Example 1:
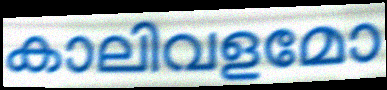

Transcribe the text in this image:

കാലിവളമോ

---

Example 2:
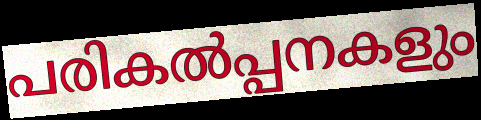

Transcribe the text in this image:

പരികൽപ്പനകളും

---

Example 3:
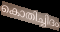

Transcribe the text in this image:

കൊതിച്ചിദം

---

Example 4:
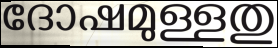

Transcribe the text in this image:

ദോഷമുള്ളതു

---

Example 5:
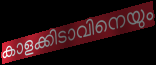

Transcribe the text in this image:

കാളക്കിടാവിനെയും